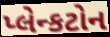
પ્લેન્કટોન